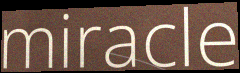
miracle